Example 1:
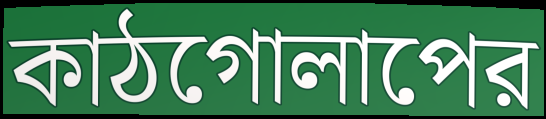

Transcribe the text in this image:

কাঠগোলাপের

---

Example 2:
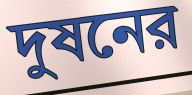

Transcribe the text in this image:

দুষনের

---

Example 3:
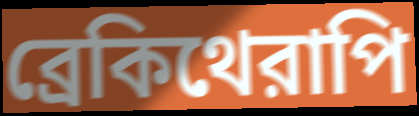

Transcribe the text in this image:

ব্রেকিথেরাপি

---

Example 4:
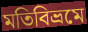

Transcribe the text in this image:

মতিবিভ্রমে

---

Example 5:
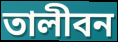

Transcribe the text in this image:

তালীবন